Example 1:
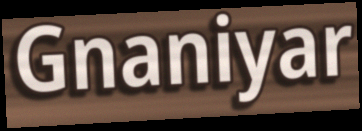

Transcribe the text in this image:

Gnaniyar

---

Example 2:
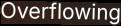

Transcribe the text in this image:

Overflowing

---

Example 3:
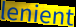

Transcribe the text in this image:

lenient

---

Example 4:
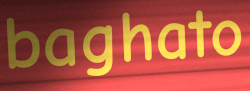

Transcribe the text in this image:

baghato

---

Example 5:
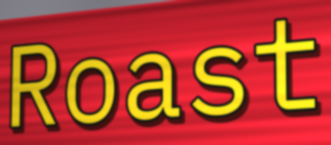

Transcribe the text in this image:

Roast